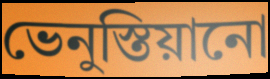
ভেনুস্তিয়ানো